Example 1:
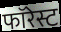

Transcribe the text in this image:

फॉरेस्‍ट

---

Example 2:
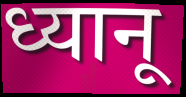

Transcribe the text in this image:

ध्यानू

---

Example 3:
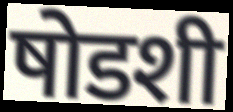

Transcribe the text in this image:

षोडशी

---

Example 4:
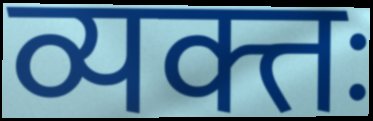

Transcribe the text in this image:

व्यक्तः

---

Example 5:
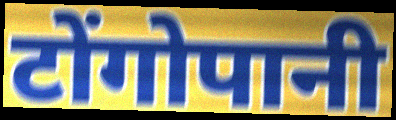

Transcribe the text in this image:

टोंगोपानी